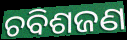
ଚବିଶଜଣ